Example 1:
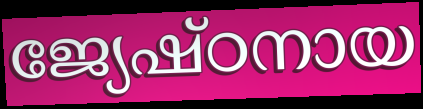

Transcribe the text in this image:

ജ്യേഷ്ഠനായ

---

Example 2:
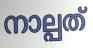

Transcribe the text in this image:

നാല്പത്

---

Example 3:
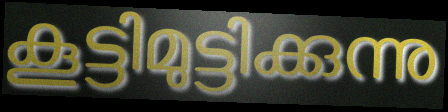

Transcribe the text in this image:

കൂട്ടിമുട്ടിക്കുന്നു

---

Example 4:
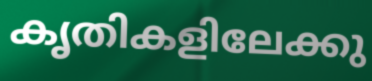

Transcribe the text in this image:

കൃതികളിലേക്കു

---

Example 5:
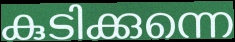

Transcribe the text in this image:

കുടിക്കുന്നെ